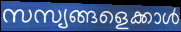
സസ്യങ്ങളെക്കാൾ